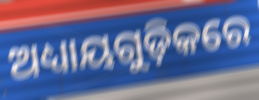
ଅଧ୍ୟାୟଗୁଡ଼ିକରେ